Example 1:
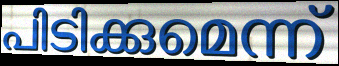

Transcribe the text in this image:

പിടിക്കുമെന്ന്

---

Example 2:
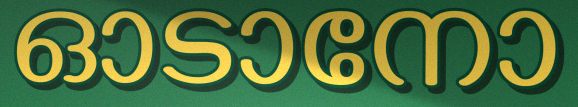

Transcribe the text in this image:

ഓടാനോ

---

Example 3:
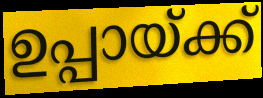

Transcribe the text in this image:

ഉപ്പായ്ക്ക്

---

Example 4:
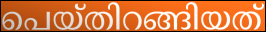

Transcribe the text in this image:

പെയ്തിറങ്ങിയത്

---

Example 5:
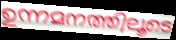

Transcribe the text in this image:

ഉന്നമനത്തിലൂടെ